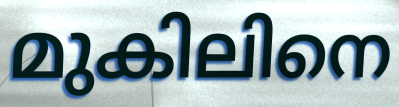
മുകിലിനെ